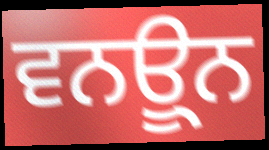
ਵਨਊ੍ਨ